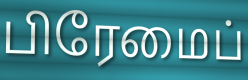
பிரேமைப்